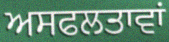
ਅਸਫਲਤਾਵਾਂ